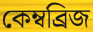
কেম্বব্ৰিজ